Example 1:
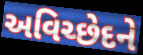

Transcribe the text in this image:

અવિચ્છેદને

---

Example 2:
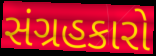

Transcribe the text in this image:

સંગ્રહકારો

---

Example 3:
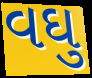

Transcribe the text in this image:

વઘુ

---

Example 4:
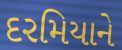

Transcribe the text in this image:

દરમિયાને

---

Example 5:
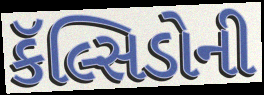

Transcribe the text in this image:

કૅલ્સિડોની